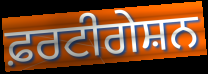
ਫ਼ਰਟੀਗੇਸ਼ਨ